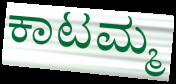
ಕಾಟಮ್ಮ